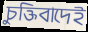
চুক্তিবাদেই